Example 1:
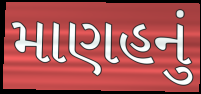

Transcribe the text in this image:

માણહનું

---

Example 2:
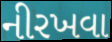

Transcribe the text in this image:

નીરખવા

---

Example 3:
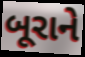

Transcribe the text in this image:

બૂરાને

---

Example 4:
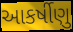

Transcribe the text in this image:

આકર્ષીણુ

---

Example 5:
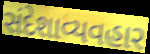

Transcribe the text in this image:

સંદેશાવ્યવહાર